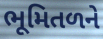
ભૂમિતળને